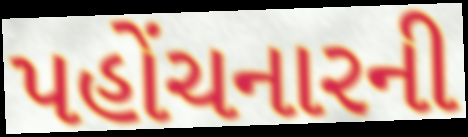
પહોંચનારની